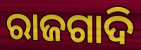
ରାଜଗାଦି